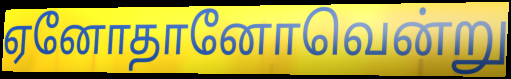
ஏனோதானோவென்று